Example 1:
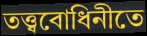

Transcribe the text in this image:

তত্ত্ববোধিনীতে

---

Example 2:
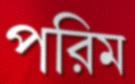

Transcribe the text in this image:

পরিম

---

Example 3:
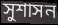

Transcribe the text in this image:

সুশাসন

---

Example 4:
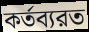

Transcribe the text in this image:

কর্তব্যরত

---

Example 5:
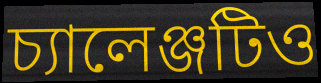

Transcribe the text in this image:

চ্যালেঞ্জটিও